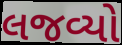
લજવ્યો